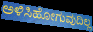
ಅಳಿಸಿಹೋಗುವುದಿಲ್ಲ